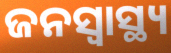
ଜନସ୍ୱାସ୍ଥ୍ୟ